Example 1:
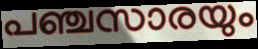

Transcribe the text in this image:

പഞ്ചസാരയും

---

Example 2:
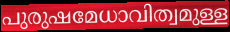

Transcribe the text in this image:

പുരുഷമേധാവിത്വമുള്ള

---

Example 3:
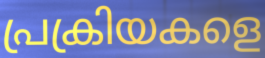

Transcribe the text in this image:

പ്രക്രിയകളെ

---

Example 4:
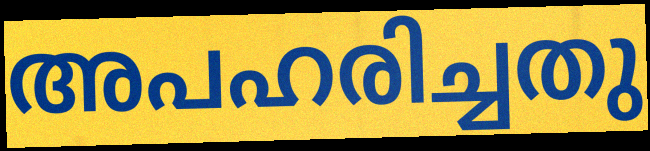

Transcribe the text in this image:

അപഹരിച്ചതു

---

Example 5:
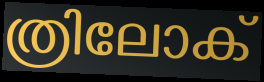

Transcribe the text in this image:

ത്രിലോക്